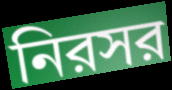
নিরসর